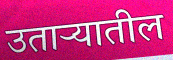
उताऱ्यातील